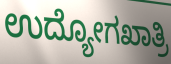
ಉದ್ಯೋಗಖಾತ್ರಿ